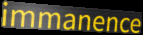
immanence